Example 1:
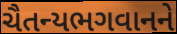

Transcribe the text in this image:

ચૈતન્યભગવાનને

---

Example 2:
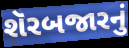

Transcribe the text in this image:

શૅરબજારનું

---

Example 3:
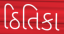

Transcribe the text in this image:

ઠિતિકા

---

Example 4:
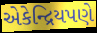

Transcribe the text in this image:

એકેન્દ્રિયપણે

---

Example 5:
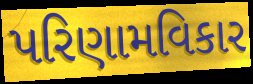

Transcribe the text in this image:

પરિણામવિકાર